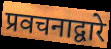
प्रवचनाद्वारे